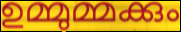
ഉമ്മുമ്മക്കും